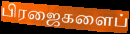
பிரஜைகளைப்